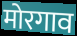
मोरगाव